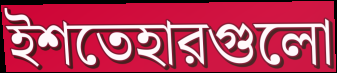
ইশতেহারগুলো